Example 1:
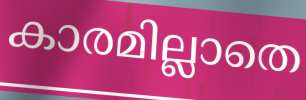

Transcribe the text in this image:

കാരമില്ലാതെ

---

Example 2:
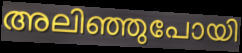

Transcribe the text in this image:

അലിഞ്ഞുപോയി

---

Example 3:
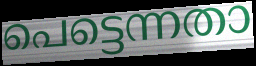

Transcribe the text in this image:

പെട്ടെന്നതാ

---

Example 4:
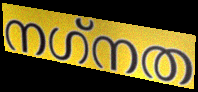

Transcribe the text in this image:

നഗ്‌നത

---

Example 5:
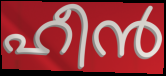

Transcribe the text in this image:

ഹീൻ